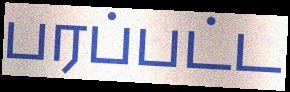
பரப்பட்ட